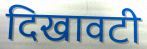
दिखावटी